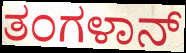
ತಂಗಳಾನ್